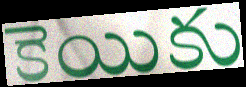
కెయికు